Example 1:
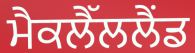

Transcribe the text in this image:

ਮੈਕਲੈੱਲਲੈਂਡ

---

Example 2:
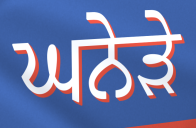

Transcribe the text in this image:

ਘਨੇੜੇ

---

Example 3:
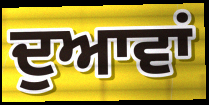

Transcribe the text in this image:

ਦੁਆਵਾਂ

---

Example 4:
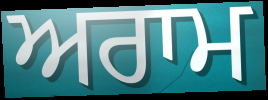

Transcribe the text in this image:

ਅਰਾਮ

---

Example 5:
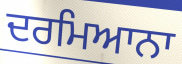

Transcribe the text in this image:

ਦਰਮਿਆਨਾ